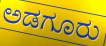
ಅಡಗೂರು